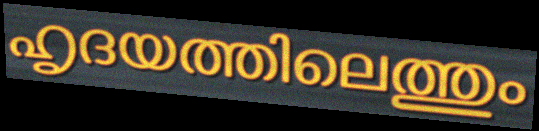
ഹൃദയത്തിലെത്തും